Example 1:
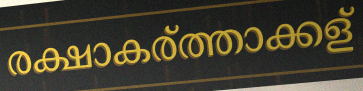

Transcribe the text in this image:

രക്ഷാകര്ത്താക്കള്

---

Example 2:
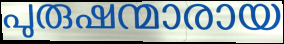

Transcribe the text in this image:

പുരുഷന്മാരായ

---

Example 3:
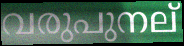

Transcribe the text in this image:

വരുപുനല്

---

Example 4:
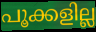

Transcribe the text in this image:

പൂക്കളില്ല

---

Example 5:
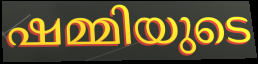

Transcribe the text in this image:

ഷമ്മിയുടെ